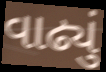
વાઢ્યું